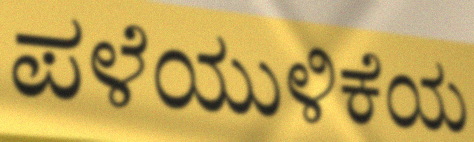
ಪಳೆಯುಳಿಕೆಯ